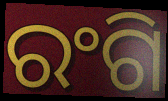
ରଂଗି